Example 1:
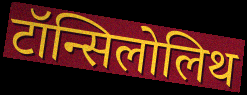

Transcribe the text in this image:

टॉन्सिलोलिथ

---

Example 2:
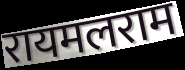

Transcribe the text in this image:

रायमलराम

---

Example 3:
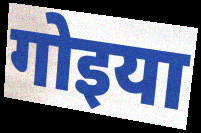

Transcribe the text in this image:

गोइया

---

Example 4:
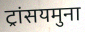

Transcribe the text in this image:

ट्रांसयमुना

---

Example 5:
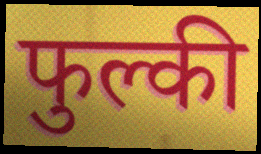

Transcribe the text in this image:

फुल्की